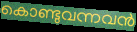
കൊണ്ടുവന്നവൻ